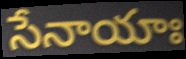
సేనాయాః